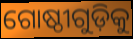
ଗୋଷ୍ଠୀଗୁଡ଼ିକୁ